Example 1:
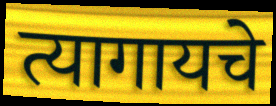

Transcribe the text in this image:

त्यागायचे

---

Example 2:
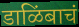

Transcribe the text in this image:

डाळिंबाचं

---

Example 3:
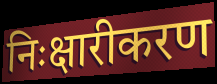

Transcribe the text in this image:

निःक्षारीकरण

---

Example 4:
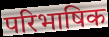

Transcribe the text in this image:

परिभाषिक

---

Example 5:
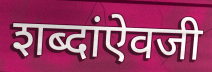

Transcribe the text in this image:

शब्दांऐवजी